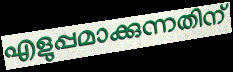
എളുപ്പമാക്കുന്നതിന്